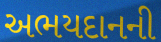
અભયદાનની